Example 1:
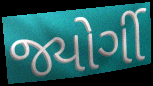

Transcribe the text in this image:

જ્યોર્ગી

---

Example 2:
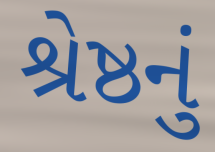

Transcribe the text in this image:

શ્રેષ્ઠનું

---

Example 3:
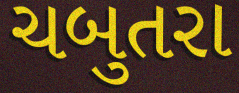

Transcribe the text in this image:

ચબુતરા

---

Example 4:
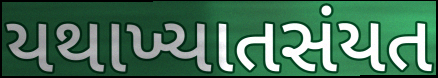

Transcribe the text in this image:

યથાખ્યાતસંયત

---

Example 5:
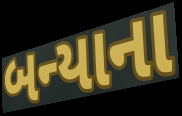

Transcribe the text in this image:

બન્યાના